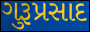
ગુરૂપ્રસાદ